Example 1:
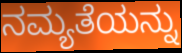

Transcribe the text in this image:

ನಮ್ಯತೆಯನ್ನು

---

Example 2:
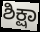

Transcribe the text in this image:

ಶಿಕ್ಷಾ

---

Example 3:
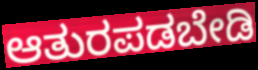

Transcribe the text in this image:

ಆತುರಪಡಬೇಡಿ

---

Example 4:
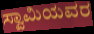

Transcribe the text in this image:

ಸ್ವಾಮಿಯವರ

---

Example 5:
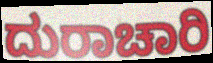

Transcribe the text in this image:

ದುರಾಚಾರಿ